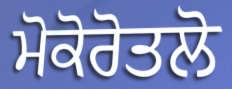
ਮੋਕੋਰੋਤਲੋ